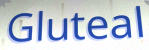
Gluteal